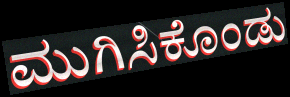
ಮುಗಿಸಿಕೊಂಡು